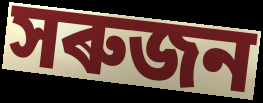
সৰুজন